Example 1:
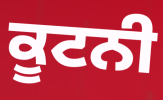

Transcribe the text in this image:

ਕੂਟਨੀ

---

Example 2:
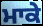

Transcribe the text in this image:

ਮਾਕੇ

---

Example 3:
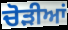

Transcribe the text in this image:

ਚੋੜੀਆਂ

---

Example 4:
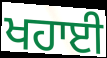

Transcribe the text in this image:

ਖਹਾਈ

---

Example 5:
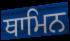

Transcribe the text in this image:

ਥਾਮਿਨ